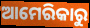
ଆମେରିକାରୁ